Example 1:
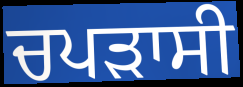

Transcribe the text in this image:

ਚਪੜਾਸੀ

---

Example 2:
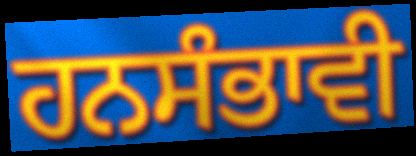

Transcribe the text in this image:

ਹਨਸੰਭਾਵੀ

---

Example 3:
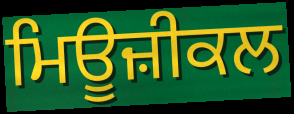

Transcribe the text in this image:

ਮਿਊਜ਼ੀਕਲ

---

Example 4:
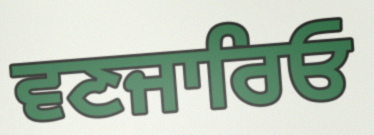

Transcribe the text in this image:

ਵਣਜਾਰਿਓ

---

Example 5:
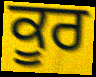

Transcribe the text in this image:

ਕੂਰ